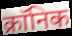
क्रॉनिक